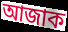
আজাক